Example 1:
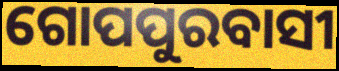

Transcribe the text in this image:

ଗୋପପୁରବାସୀ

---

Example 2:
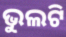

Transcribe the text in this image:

ଭୁଲଟି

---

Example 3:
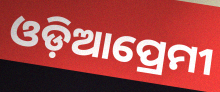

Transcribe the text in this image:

ଓଡ଼ିଆପ୍ରେମୀ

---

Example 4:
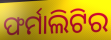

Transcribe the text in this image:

ଫର୍ମାଲିଟିର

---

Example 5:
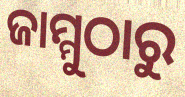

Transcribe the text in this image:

ଜାମ୍ମୁଠାରୁ